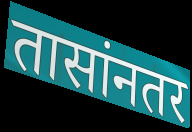
तासांनतर